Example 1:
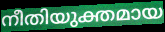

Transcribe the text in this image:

നീതിയുക്തമായ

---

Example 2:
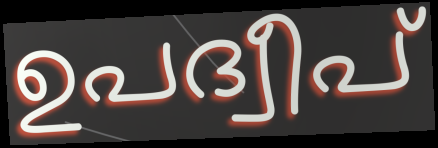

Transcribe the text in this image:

ഉപദ്വീപ്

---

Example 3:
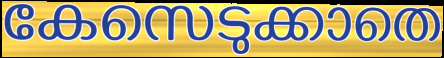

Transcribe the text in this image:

കേസെടുക്കാതെ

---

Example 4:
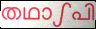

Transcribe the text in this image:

തഥാഽപി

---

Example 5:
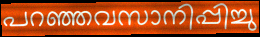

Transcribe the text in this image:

പറഞ്ഞവസാനിപ്പിച്ചു